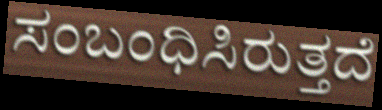
ಸಂಬಂಧಿಸಿರುತ್ತದೆ